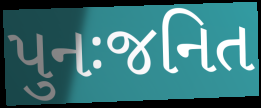
પુનઃજનિત